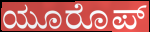
ಯೂರೊಪ್